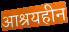
आश्रयहीन